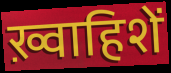
ख़्वाहिशें